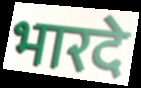
भारदे